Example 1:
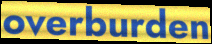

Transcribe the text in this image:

overburden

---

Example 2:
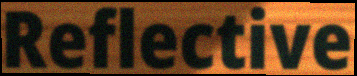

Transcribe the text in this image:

Reflective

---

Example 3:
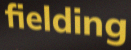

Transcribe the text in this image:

fielding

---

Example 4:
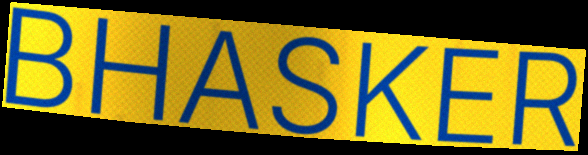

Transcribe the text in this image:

BHASKER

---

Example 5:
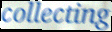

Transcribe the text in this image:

collecting